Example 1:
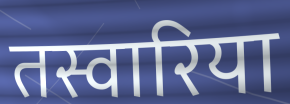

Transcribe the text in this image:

तस्वारिया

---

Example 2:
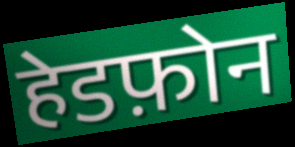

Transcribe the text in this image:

हेडफ़ोन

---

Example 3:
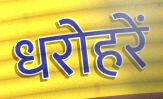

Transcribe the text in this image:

धरोहरें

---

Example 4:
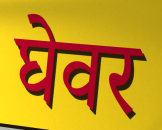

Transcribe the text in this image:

घेवर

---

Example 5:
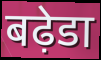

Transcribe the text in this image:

बढ़ेडा